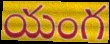
యంగ